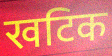
खटिक